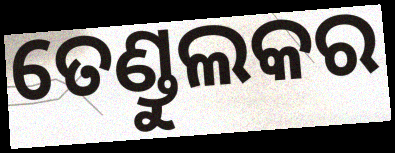
ତେଣ୍ଡୁଲକର